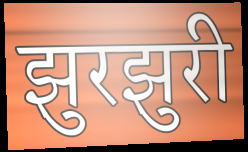
झुरझुरी